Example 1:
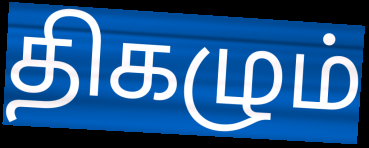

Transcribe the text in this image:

திகழும்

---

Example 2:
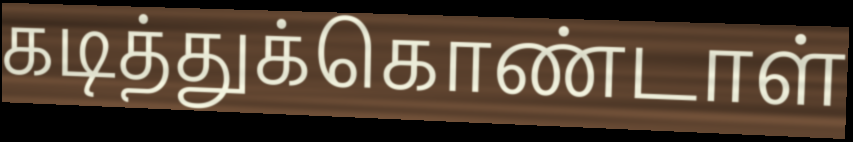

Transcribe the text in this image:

கடித்துக்கொண்டாள்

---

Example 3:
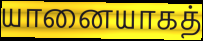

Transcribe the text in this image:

யானையாகத்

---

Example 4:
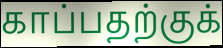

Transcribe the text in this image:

காப்பதற்குக்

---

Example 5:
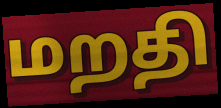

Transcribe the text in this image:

மறதி